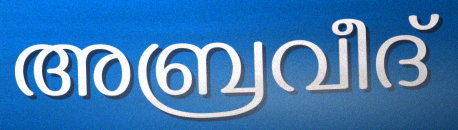
അബ്രവീദ്